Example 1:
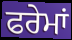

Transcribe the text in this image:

ਫਰੇਮਾਂ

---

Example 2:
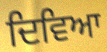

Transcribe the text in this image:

ਦਿਵਿਆ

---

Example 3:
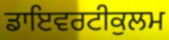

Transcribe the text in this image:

ਡਾਇਵਰਟੀਕੁਲਮ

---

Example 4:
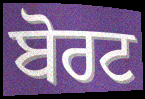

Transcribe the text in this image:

ਬੋਰਟ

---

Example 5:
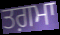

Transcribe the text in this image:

ਤਗ਼ਮਾ